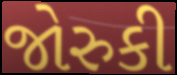
જોરુકી